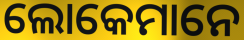
ଲୋକେମାନେ